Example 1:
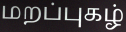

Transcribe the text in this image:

மறப்புகழ்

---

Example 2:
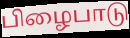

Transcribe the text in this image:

பிழைபாடு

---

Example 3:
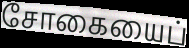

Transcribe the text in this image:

சோகையைப்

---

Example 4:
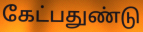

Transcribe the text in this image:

கேட்பதுண்டு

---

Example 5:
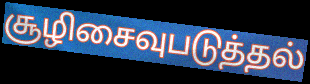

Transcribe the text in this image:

சூழிசைவுபடுத்தல்